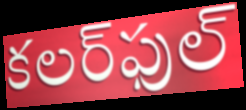
కలర్‌ఫుల్